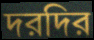
দরদির